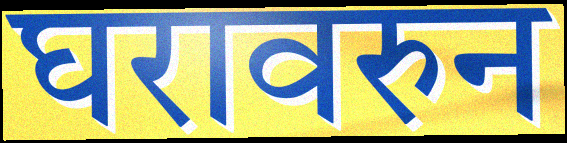
घरावरुन